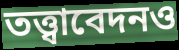
তত্ত্বাবেদনও